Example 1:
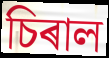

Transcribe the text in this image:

চিৰাল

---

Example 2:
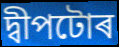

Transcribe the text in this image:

দ্বীপটোৰ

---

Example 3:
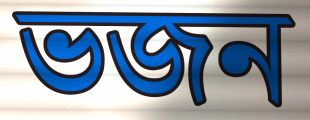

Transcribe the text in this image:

ভজন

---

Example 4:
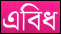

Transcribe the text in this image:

এবিধ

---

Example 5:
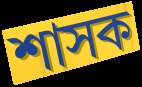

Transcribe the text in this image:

শাসক